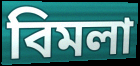
বিমলা